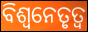
ବିଶ୍ୱନେତୃତ୍ୱ